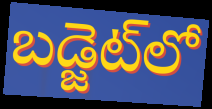
బడ్జెట్‌లో